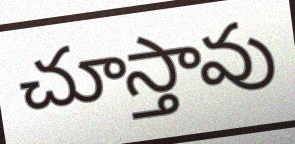
చూస్తావు